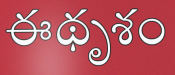
ఈథృశం